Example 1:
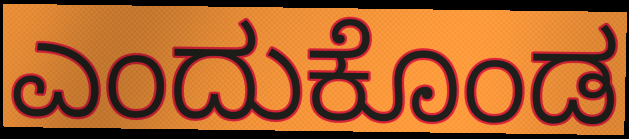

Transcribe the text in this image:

ಎಂದುಕೊಂಡ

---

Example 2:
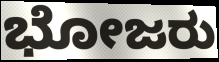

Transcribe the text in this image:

ಭೋಜರು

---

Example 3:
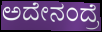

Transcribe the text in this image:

ಅದೇನಂದ್ರೆ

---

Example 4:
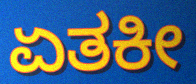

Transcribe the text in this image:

ಏತಕೀ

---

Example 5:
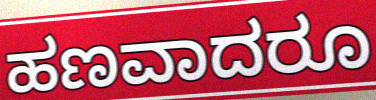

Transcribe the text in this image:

ಹಣವಾದರೂ